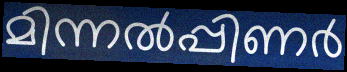
മിന്നൽപ്പിണർ